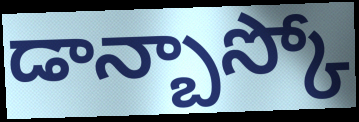
డాన్బాస్కో